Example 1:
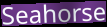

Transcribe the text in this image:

Seahorse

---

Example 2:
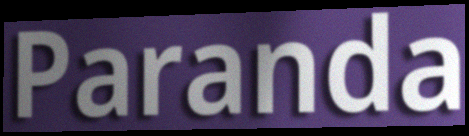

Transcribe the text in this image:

Paranda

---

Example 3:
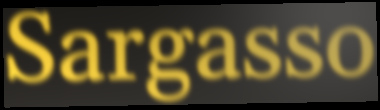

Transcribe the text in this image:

Sargasso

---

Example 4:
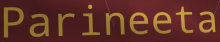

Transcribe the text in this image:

Parineeta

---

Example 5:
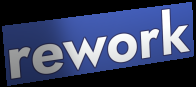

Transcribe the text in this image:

rework